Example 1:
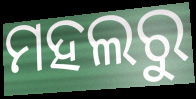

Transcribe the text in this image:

ମହଲରୁ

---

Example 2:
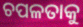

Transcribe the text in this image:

ଚପଳତାକୁ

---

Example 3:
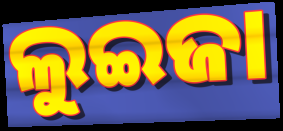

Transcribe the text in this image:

ଲୁଇଜା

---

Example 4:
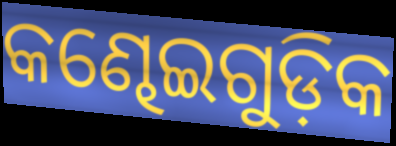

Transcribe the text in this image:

କଣ୍ଢେଇଗୁଡ଼ିକ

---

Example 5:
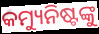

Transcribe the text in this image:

କମ୍ୟୁନିଷ୍ଟଙ୍କୁ